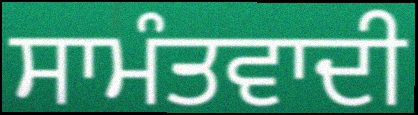
ਸਾਮੰਤਵਾਦੀ